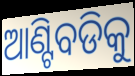
ଆଣ୍ଟିବଡିକୁ